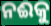
ନଈକୁ